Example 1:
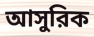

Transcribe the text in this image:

আসুরিক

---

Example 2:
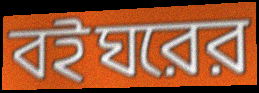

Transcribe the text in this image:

বইঘরের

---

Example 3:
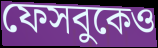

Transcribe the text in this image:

ফেসবুকেও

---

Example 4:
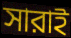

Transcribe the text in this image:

সারাই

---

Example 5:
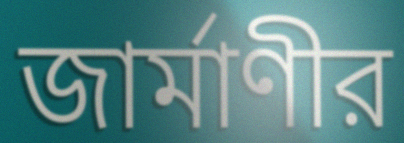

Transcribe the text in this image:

জার্মাণীর